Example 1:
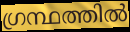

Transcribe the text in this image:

ഗ്രന്ഥത്തിൽ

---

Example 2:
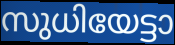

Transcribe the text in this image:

സുധിയേട്ടാ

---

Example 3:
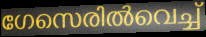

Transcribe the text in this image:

ഗേസെരിൽവെച്ച്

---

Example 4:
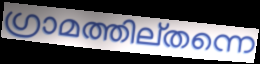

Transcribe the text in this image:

ഗ്രാമത്തില്തന്നെ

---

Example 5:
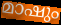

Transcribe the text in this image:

മാഷും